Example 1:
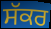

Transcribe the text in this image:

ਸੱਕਰ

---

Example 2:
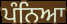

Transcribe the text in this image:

ਪੰਨਿਆ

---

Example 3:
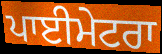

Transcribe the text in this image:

ਪਾਈਮੇਟਰਾ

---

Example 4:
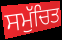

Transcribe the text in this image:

ਸਮੁੱਚਿਤ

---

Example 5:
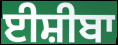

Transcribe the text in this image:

ਈਸ਼ੀਬਾ